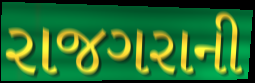
રાજગરાની